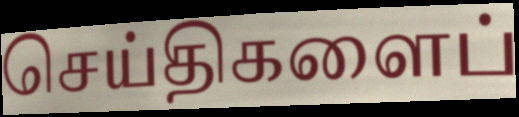
செய்திகளைப்